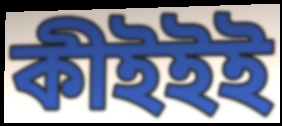
কীইইই